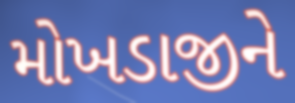
મોખડાજીને